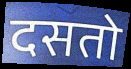
दसतो